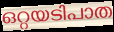
ഒറ്റയടിപാത